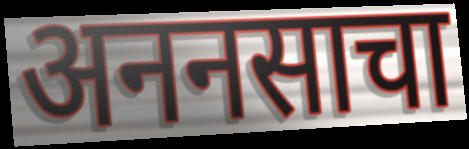
अननसाचा